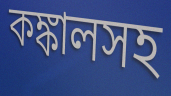
কঙ্কালসহ